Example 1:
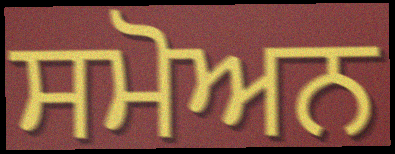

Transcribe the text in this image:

ਸਮੋਅਨ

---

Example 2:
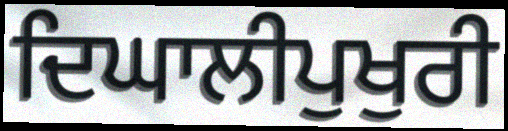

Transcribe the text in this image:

ਦਿਘਾਲੀਪੁਖੁਰੀ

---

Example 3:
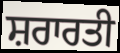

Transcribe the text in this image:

ਸ਼ਰਾਰਤੀ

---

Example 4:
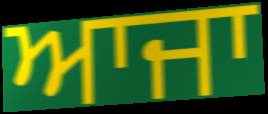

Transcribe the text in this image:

ਆਜਾ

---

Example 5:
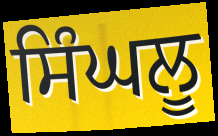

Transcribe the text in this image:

ਸਿੰਘਲੂ